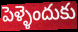
పెళ్ళెందుకు